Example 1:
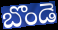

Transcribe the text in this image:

బొండె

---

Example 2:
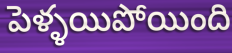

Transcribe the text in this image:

పెళ్ళయిపోయింది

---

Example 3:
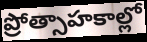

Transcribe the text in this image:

ప్రోత్సాహకాల్లో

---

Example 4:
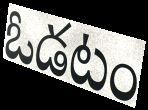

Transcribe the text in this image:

ఓడటం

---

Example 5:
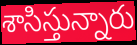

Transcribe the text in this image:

శాసిస్తున్నారు